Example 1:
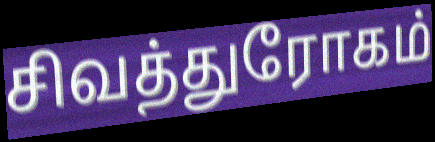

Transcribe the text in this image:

சிவத்துரோகம்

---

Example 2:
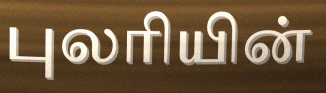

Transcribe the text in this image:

புலரியின்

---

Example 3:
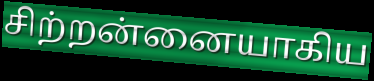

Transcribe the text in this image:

சிற்றன்னையாகிய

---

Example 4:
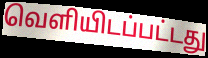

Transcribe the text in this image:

வெளியிடப்பட்டது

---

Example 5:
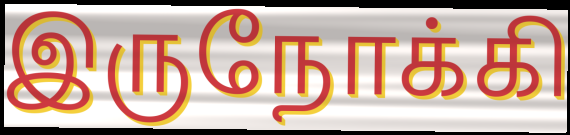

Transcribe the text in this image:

இருநோக்கி